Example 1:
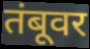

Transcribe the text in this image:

तंबूवर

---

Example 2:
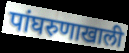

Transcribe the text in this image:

पांघरुणाखाली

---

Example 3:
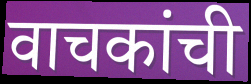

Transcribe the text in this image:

वाचकांची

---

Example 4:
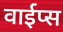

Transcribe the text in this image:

वाईप्स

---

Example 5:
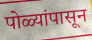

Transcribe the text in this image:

पोळ्यांपासून